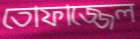
তোফাজ্জেল